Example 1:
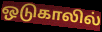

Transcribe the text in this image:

ஒடுகாலில்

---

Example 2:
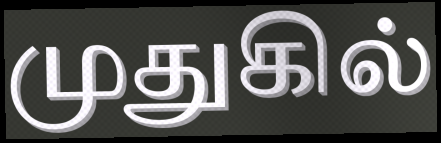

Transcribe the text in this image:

முதுகில்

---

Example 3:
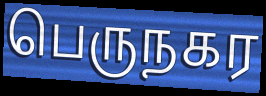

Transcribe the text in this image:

பெருநகர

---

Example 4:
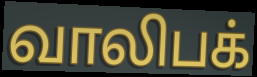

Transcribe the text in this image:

வாலிபக்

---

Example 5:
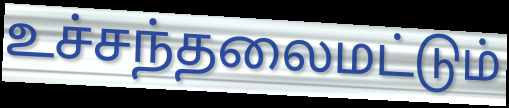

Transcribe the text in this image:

உச்சந்தலைமட்டும்